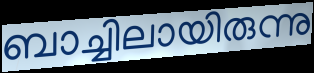
ബാച്ചിലായിരുന്നു